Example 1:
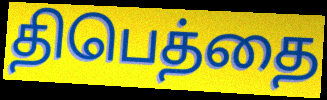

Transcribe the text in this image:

திபெத்தை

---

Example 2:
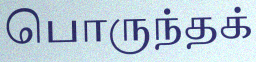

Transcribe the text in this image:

பொருந்தக்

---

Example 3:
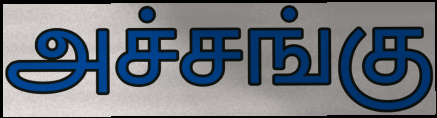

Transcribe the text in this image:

அச்சங்கு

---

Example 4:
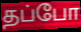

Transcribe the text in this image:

தப்போ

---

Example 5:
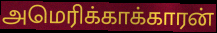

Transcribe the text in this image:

அமெரிக்காக்காரன்